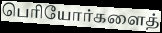
பெரியோர்களைத்